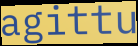
agittu